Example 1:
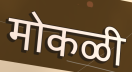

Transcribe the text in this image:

मोकळी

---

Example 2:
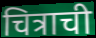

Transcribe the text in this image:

चित्राची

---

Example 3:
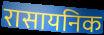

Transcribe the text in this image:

रासायनिक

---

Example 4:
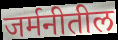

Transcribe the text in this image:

जर्मनीतील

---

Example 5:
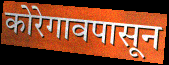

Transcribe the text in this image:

कोरेगावपासून